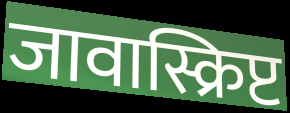
जावास्क्रिप्ट